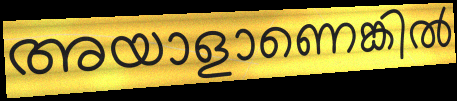
അയാളാണെങ്കിൽ